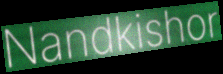
Nandkishor